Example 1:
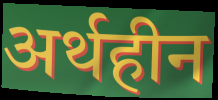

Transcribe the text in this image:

अर्थहीन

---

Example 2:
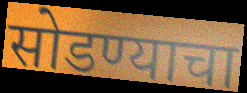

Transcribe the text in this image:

सोडण्याचा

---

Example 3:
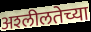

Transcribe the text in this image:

अश्‍लीलतेच्या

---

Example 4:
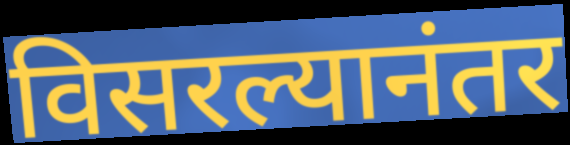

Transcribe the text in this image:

विसरल्यानंतर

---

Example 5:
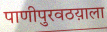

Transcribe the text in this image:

पाणीपुरवठय़ाला